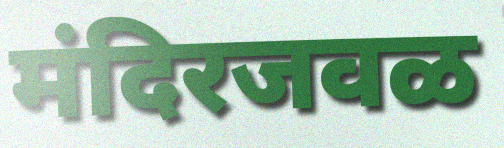
मंदिरजवळ